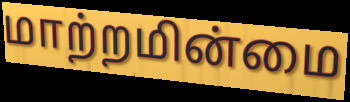
மாற்றமின்மை